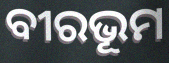
ବୀରଭୂମ